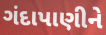
ગંદાપાણીને